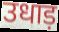
उधाड़